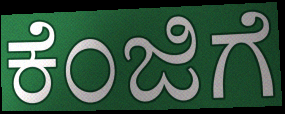
ಕೆಂಜಿಗೆ